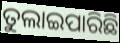
ତୁଲାଇପାରିଛି